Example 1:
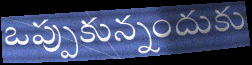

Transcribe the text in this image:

ఒప్పుకున్నందుకు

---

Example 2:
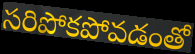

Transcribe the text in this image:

సరిపోకపోవడంతో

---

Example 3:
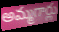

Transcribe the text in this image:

అమ్మగార్లు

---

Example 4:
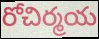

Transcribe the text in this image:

రోచిర్మయ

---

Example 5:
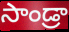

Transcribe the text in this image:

సాండ్రా